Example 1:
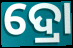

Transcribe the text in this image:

ଦ୍ରୋ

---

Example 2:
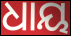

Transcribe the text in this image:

ଧାୟ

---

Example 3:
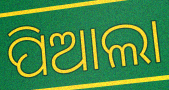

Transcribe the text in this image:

ପିଆଲା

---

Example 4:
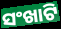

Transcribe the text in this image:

ସଂଖାଟି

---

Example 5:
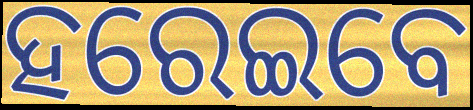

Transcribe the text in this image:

ହରେଇବେ